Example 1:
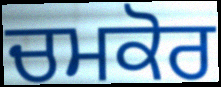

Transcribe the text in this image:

ਚਮਕੋਰ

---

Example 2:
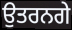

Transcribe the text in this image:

ਉਤਰਨਗੇ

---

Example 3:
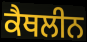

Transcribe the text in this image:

ਕੈਥਲੀਨ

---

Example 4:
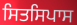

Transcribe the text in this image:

ਸਿਤਸਿਪਾਸ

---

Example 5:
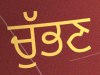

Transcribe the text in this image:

ਚੁੱਭਣ